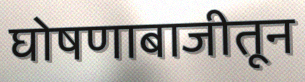
घोषणाबाजीतून